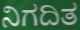
ನಿಗದಿತ